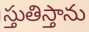
స్తుతిస్తాను